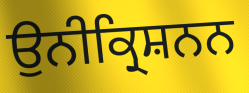
ਉਨੀਕ੍ਰਿਸ਼ਨਨ